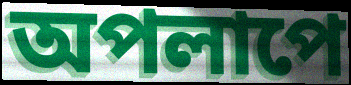
অপলাপে